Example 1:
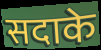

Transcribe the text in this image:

सदाके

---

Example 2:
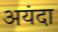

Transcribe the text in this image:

अयंदा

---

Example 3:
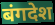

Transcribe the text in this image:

बंगदेश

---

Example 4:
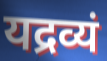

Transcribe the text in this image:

यद्रव्यं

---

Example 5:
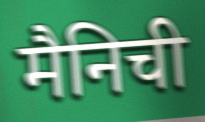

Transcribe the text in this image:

मैनिची